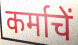
कर्माचें